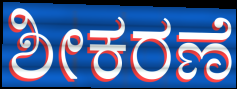
ಶೀಕರಣೆ